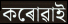
কৰোৱাই